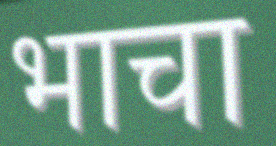
भाचा